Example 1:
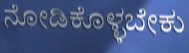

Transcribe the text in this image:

ನೋಡಿಕೊಳ್ಳಬೇಕು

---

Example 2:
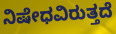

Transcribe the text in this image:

ನಿಷೇಧವಿರುತ್ತದೆ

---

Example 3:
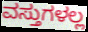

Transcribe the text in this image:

ವಸ್ತುಗಳಲ್ಲ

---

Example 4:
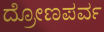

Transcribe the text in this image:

ದ್ರೋಣಪರ್ವ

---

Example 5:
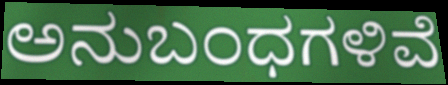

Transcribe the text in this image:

ಅನುಬಂಧಗಳಿವೆ